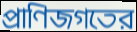
প্রাণিজগতের